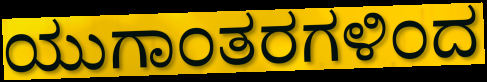
ಯುಗಾಂತರಗಳಿಂದ